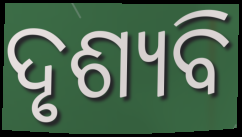
ଦୃଶ୍ୟବି